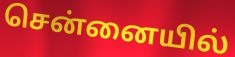
சென்னையில்